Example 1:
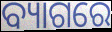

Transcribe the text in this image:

ବ୍ୟାଗରେ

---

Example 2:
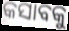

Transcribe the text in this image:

କସାବକୁ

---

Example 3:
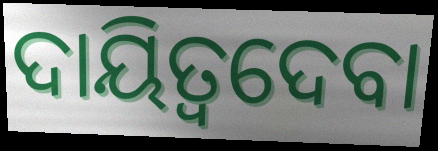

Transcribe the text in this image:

ଦାୟିତ୍ୱଦେବା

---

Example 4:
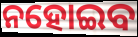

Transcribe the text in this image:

ନହୋଇବ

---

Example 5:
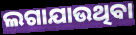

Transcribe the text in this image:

ଲଗାଯାଉଥିବା